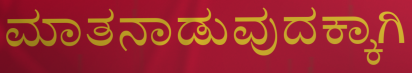
ಮಾತನಾಡುವುದಕ್ಕಾಗಿ